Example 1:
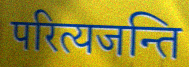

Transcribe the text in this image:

परित्यजन्ति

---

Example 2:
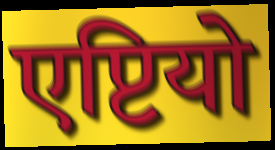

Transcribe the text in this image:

एप्टियो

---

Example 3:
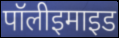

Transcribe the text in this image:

पॉलीइमाइड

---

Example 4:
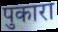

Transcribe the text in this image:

पुकारा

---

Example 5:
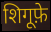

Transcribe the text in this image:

शिगूफ़े